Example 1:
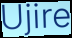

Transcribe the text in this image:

Ujire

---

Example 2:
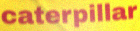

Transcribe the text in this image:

caterpillar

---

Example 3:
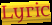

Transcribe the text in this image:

Lyric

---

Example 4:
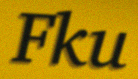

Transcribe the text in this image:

Fku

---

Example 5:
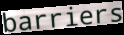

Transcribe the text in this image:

barriers